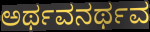
ಅರ್ಥವನರ್ಥವ